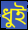
ধুই